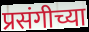
प्रसंगीच्या